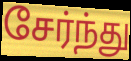
சேர்ந்து